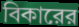
বিকারের